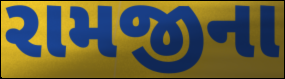
રામજીના